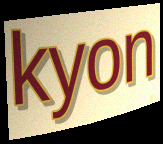
kyon